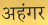
अहंगर